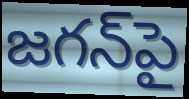
జగన్‌పై